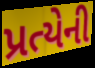
પ્રત્યેની